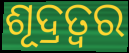
ଶୂଦ୍ରତ୍ଵର